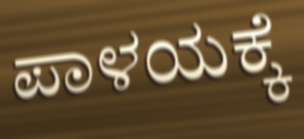
ಪಾಳಯಕ್ಕೆ